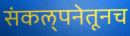
संकल्पनेतूनच